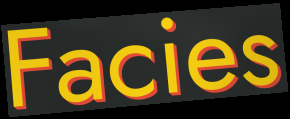
Facies